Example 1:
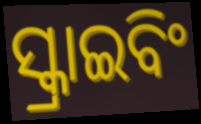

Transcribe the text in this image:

ସ୍କ୍ରାଇବିଂ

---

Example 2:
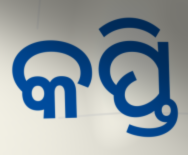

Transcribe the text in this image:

କପ୍ତି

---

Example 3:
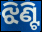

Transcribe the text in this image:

ଝିଣ୍ଟି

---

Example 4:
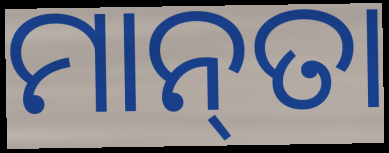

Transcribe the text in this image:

ମାନ୍‌ତା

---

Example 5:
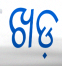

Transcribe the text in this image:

ଖଡ଼